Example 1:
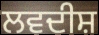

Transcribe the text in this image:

ਲਵਦੀਸ਼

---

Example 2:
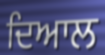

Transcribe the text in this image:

ਦਿਆਲ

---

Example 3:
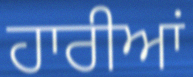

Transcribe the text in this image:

ਹਾਰੀਆਂ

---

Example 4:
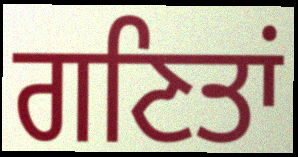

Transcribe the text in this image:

ਗਣਿਤਾਂ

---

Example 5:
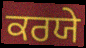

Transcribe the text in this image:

ਕਰਯੇ